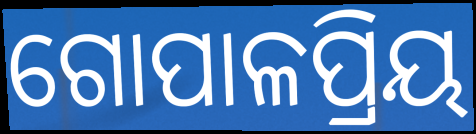
ଗୋପାଳପ୍ରିୟ